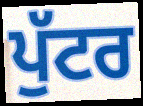
ਪੁੱਟਰ